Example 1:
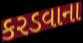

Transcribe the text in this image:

કરડવાના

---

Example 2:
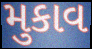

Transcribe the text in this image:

મુકાવ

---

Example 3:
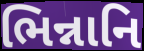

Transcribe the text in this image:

ભિન્નાનિ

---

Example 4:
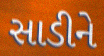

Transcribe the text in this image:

સાડીને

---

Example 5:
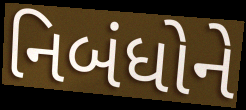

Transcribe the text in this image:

નિબંધોને